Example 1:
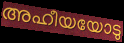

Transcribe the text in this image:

അഹീയയോടു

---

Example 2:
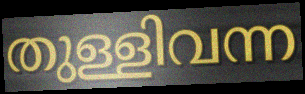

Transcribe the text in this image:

തുള്ളിവന്ന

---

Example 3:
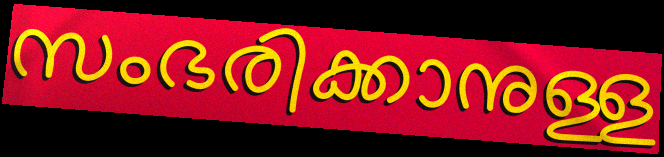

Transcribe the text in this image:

സംഭരിക്കാനുള്ള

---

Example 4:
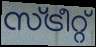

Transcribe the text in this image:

സ്ട്രീറ്റ്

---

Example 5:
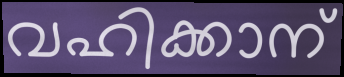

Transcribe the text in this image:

വഹിക്കാന്